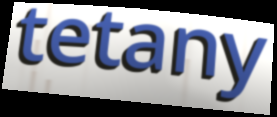
tetany